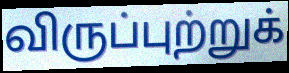
விருப்புற்றுக்